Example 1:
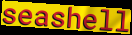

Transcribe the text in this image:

seashell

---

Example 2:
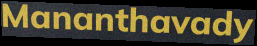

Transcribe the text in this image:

Mananthavady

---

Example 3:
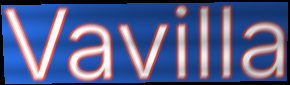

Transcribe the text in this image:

Vavilla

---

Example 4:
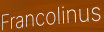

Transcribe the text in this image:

Francolinus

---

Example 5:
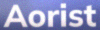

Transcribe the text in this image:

Aorist